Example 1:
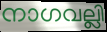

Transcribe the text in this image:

നാഗവല്ലി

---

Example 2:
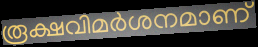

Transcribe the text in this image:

രൂക്ഷവിമർശനമാണ്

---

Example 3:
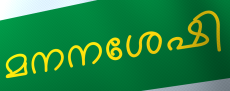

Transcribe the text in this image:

മനനശേഷി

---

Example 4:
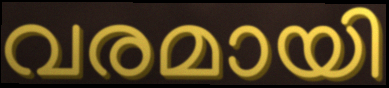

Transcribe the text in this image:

വരമായി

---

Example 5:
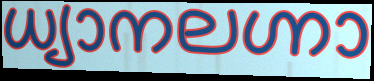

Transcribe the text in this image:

ധ്യാനലഗ്നാ